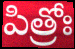
పిత్రోః